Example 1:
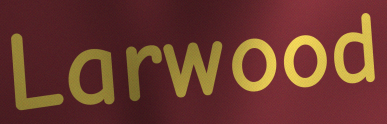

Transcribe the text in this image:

Larwood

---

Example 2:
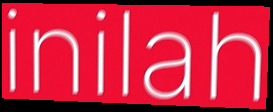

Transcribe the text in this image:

inilah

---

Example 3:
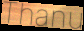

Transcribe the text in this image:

Thanu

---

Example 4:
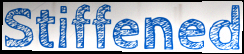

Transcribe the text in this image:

Stiffened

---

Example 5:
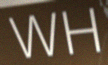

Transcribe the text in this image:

WH